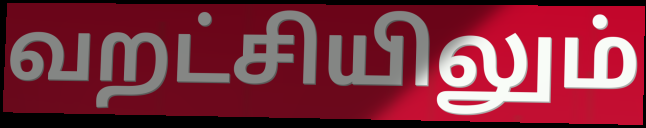
வறட்சியிலும்